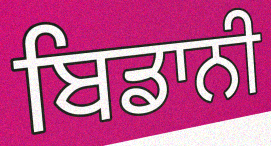
ਬਿਡਾਨੀ